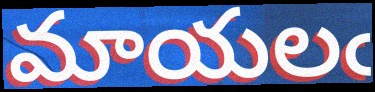
మాయలఁ